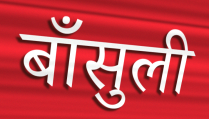
बाँसुली